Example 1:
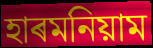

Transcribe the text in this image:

হাৰমনিয়াম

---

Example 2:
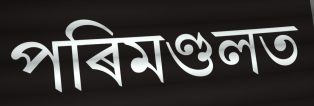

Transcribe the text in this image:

পৰিমণ্ডলত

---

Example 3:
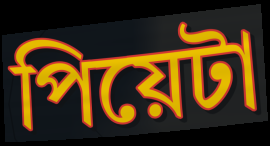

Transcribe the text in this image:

পিয়েটা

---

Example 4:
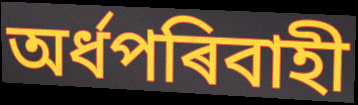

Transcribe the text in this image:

অৰ্ধপৰিবাহী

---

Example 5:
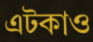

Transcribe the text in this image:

এটকাও